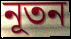
নূতন